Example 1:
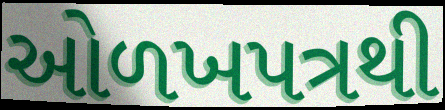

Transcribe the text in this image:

ઓળખપત્રથી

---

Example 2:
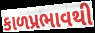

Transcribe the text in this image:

કાળપ્રભાવથી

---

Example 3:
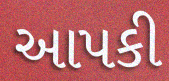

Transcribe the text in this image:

આપકી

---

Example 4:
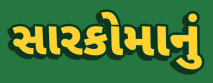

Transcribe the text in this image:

સારકોમાનું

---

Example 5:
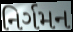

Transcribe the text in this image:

નિર્ગમન